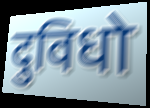
दुविधो